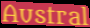
Austral